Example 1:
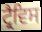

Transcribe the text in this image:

ਟ੍ਰੈਵਿਸ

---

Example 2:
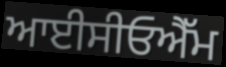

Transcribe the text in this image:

ਆਈਸੀਓਐੱਮ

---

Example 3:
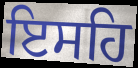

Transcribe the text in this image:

ਇਸਹਿ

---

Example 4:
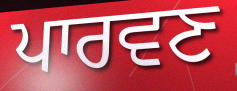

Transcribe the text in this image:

ਪਾਰਵਣ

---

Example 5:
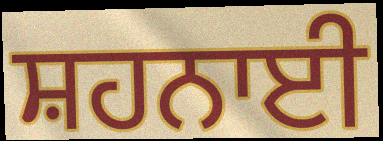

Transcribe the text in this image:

ਸ਼ਹਨਾਈ